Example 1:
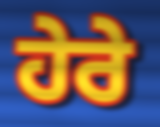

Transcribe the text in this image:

ਹੇਰੇ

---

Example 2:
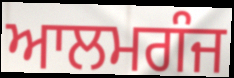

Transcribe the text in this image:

ਆਲਮਗੰਜ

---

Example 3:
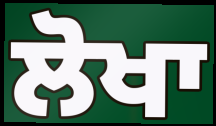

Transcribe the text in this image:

ਲੋਖਾ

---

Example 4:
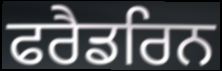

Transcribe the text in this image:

ਫਰੈਡਰਿਨ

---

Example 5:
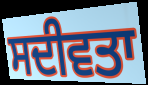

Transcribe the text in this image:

ਸਦੀਵਤਾ